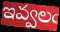
ఇవ్వలఁ